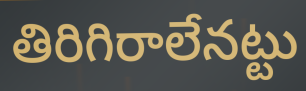
తిరిగిరాలేనట్టు